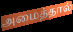
அமைத்தால்